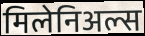
मिलेनिअल्स